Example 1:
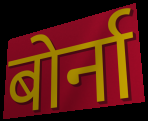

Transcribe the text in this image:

बोर्ना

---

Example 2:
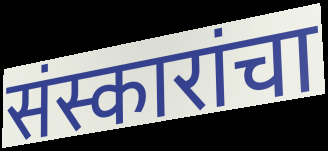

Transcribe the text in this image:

संस्कारांचा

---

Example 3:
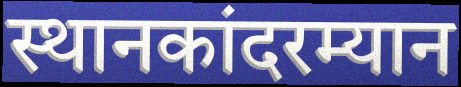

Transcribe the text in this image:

स्थानकांदरम्यान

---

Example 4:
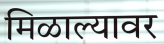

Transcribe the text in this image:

मिळाल्यावर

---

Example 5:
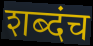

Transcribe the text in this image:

शब्दंच